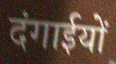
दंगाईयों